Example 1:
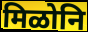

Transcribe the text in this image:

मिळोनि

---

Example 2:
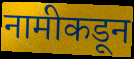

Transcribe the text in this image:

नामीकडून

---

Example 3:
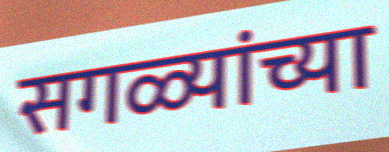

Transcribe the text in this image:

सगळ्यांच्या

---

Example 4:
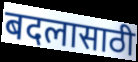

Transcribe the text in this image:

बदलासाठी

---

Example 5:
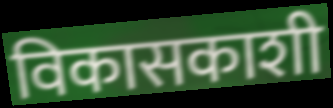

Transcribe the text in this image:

विकासकाशी